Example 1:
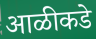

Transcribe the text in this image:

आळीकडे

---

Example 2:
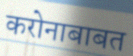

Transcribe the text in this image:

करोनाबाबत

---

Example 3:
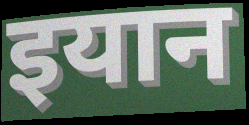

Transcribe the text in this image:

इयान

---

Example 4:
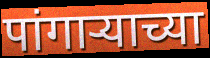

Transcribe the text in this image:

पांगार्‍याच्या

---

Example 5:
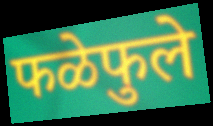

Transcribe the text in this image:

फळेफुले